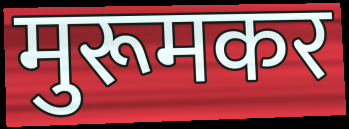
मुरूमकर